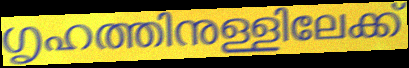
ഗൃഹത്തിനുള്ളിലേക്ക്